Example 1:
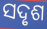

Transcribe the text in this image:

ସଦୃଶ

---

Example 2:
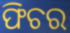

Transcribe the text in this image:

ଫିଚର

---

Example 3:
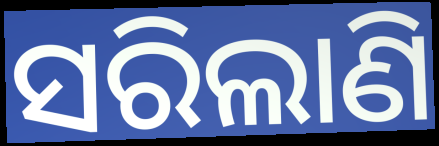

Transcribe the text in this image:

ସରିଲାଣି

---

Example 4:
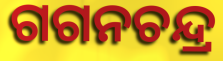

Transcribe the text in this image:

ଗଗନଚନ୍ଦ୍ର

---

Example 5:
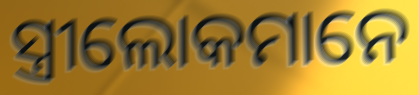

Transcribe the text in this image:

ସ୍ତ୍ରୀଲୋକମାନେ